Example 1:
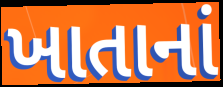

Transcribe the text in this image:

ખાતાનાં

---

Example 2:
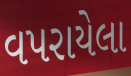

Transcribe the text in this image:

વપરાયેલા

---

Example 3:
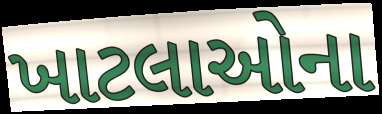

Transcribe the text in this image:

ખાટલાઓના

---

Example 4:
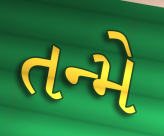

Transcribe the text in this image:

તન્મે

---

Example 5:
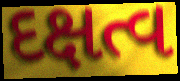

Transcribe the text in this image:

દક્ષત્વ